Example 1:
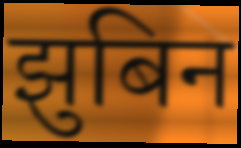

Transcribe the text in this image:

झुबिन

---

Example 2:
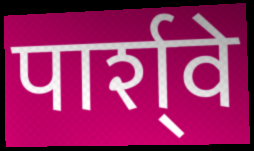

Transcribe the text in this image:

पार्श्वे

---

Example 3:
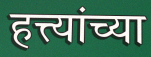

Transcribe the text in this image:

हत्त्यांच्या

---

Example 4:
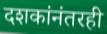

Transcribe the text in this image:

दशकांनंतरही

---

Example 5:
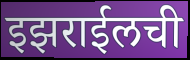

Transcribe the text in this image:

इझराईलची